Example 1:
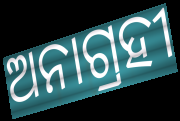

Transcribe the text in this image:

ଅନାଗ୍ରହୀ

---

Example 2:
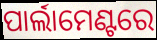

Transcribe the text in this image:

ପାର୍ଲାମେଣ୍ଟରେ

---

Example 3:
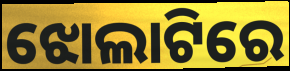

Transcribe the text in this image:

ଝୋଲାଟିରେ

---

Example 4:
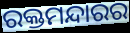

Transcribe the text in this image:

ରକ୍ତମନ୍ଦାରର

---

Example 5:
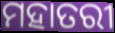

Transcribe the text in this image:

ମହାତରୀ